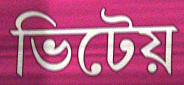
ভিটেয়